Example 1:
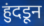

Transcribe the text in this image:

हुंदडून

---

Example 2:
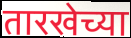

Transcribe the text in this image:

तारखेच्या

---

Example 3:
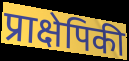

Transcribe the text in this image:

प्राक्षेपिकी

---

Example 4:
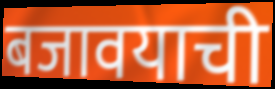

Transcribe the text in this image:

बजावयाची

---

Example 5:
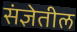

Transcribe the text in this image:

संज्ञेतील